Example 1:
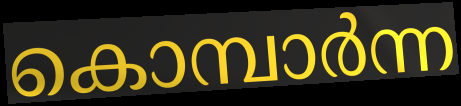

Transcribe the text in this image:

കൊമ്പാർന്ന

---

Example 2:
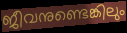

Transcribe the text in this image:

ജീവനുണ്ടെങ്കിലും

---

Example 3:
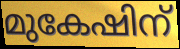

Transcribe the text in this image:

മുകേഷിന്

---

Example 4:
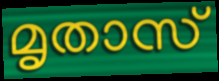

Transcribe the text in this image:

മൃതാസ്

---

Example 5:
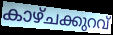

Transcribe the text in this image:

കാഴ്ചക്കുറവ്